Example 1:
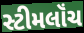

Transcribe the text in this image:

સ્ટીમલૉંચ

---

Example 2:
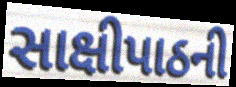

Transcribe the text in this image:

સાક્ષીપાઠની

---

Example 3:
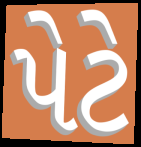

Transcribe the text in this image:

પેટે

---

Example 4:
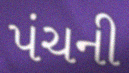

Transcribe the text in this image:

પંચની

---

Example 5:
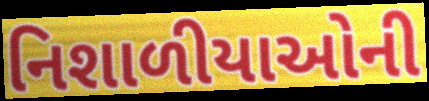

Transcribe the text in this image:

નિશાળીયાઓની